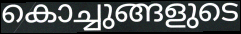
കൊച്ചുങ്ങളുടെ